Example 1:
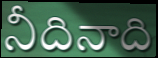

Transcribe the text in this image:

నీదినాది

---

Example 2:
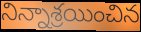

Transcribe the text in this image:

నిన్నాశ్రయించిన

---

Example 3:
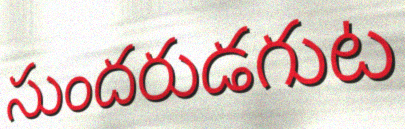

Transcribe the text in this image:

సుందరుడగుట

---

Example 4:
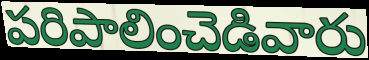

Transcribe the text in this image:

పరిపాలించెడివారు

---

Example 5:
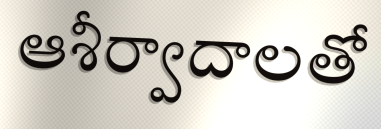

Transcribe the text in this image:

ఆశీర్వాదాలతో